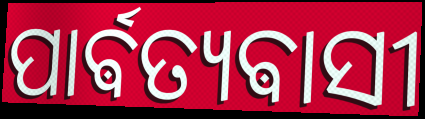
ପାର୍ଵତ୍ୟଵାସୀ